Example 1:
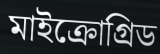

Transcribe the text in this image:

মাইক্রোগ্রিড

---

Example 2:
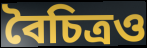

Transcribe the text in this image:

বৈচিত্রও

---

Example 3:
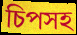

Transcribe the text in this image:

চিপসহ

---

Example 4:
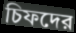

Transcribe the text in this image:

চিফদের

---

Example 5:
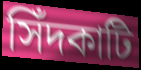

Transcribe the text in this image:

সিঁদকাটি